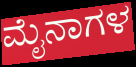
ಮೈನಾಗಳ